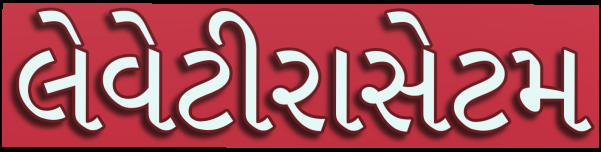
લેવેટીરાસેટમ